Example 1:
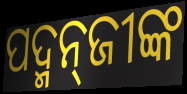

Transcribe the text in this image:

ପଦ୍ମନ୍‌ଜୀଙ୍କ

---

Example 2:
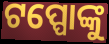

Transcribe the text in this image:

ଟପ୍ପୋଙ୍କୁ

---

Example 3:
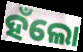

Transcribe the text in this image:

ହଁଲୋ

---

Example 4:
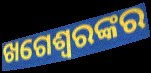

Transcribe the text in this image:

ଖଗେଶ୍ୱରଙ୍କର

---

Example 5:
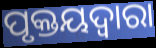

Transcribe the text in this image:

ପୃକ୍ତୟଦ୍ଵାରା